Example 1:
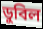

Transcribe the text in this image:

ডুবিল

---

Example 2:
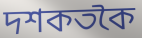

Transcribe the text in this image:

দশকতকৈ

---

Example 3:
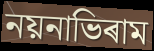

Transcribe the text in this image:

নয়নাভিৰাম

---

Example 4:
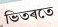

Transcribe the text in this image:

ভিতৰতে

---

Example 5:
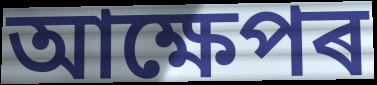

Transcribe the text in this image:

আক্ষেপৰ